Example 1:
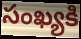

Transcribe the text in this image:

సంఖ్యకి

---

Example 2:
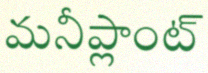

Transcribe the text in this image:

మనీప్లాంట్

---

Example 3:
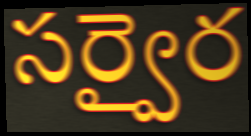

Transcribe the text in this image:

సర్వైర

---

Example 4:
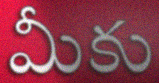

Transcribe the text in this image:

మీకు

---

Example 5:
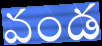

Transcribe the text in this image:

వండ